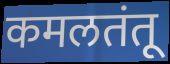
कमलतंतू